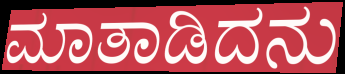
ಮಾತಾಡಿದನು